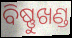
ବିଷ୍ଣୁଖଣ୍ଡ